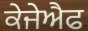
ਕੇਜੇਐਫ